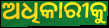
ଅଧିକାରୀକୁ